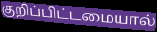
குறிப்பிட்டமையால்